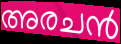
അരചൻ